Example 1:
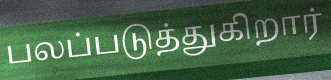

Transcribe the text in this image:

பலப்படுத்துகிறார்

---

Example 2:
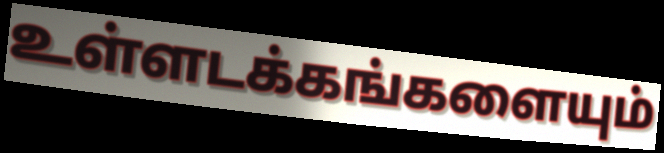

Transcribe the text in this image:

உள்ளடக்கங்களையும்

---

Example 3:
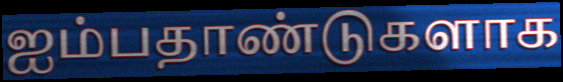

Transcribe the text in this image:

ஐம்பதாண்டுகளாக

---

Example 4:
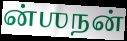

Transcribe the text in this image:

ன்ஶநன்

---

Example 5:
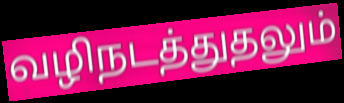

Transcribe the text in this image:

வழிநடத்துதலும்